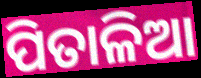
ପିତାଳିଆ